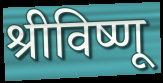
श्रीविष्णू